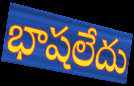
భాషలేదు